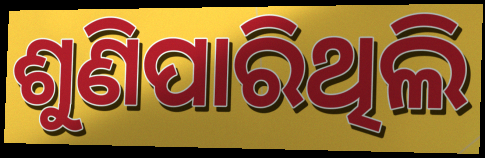
ଶୁଣିପାରିଥିଲି